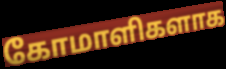
கோமாளிகளாக